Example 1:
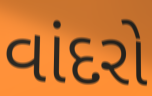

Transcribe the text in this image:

વાંદરો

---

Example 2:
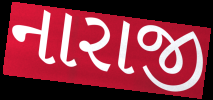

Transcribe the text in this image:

નારાજી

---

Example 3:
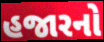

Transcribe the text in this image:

હજારનો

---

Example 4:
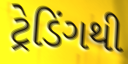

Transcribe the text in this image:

ટ્રેડિંગથી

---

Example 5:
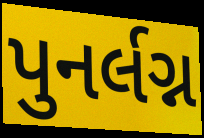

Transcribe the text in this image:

પુનર્લગ્ન